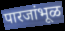
पारजांभूळ